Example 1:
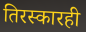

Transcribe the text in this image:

तिरस्कारही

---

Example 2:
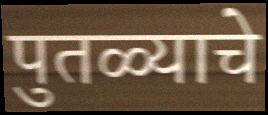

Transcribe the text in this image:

पुतळ्याचे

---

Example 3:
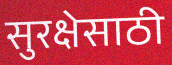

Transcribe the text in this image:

सुरक्षेसाठी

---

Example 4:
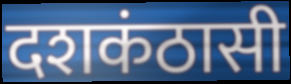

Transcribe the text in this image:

दशकंठासी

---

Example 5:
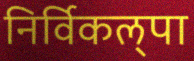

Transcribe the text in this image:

निर्विकल्पा